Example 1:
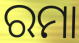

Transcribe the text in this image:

ରମା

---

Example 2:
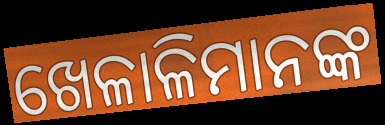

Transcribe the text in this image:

ଖେଳାଳିମାନଙ୍କ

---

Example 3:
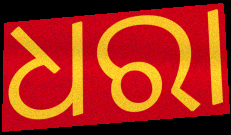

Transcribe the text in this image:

ଧରା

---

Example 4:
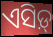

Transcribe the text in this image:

ଏସିଡ଼୍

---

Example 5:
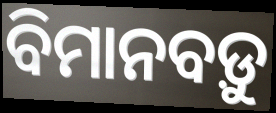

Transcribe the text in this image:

ବିମାନବଡ଼ୁ